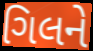
ગિલને